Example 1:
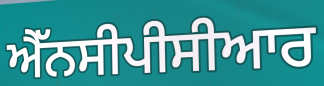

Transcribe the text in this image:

ਐੱਨਸੀਪੀਸੀਆਰ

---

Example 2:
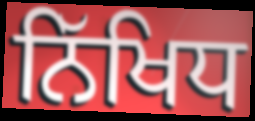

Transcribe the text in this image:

ਨਿੱਖਿਧ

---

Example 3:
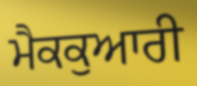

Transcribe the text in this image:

ਮੈਕਕੁਆਰੀ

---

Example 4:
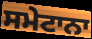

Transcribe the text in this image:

ਸਮੇਟਾਨਾ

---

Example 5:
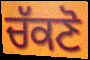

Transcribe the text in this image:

ਚੱਕਣੋ